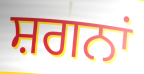
ਸ਼ਗਨਾਂ